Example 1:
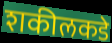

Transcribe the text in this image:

शकीलकडे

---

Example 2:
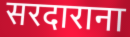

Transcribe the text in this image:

सरदाराना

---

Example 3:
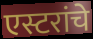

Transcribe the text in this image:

एस्टरांचे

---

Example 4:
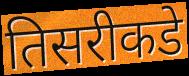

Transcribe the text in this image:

तिसरीकडे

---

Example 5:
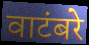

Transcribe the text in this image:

वाटंबरे